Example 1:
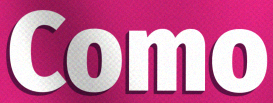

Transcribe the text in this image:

Como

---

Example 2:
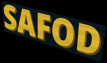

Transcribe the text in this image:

SAFOD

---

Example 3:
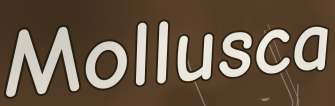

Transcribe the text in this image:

Mollusca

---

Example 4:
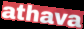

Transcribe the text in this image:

athava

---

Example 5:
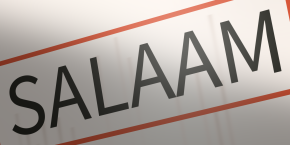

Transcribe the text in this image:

SALAAM